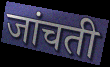
जांचती